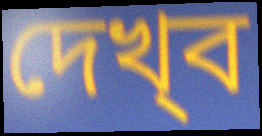
দেখ্‌ব